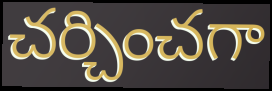
చర్చించగా